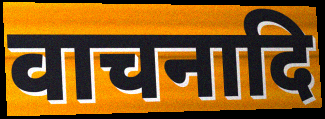
वाचनादि